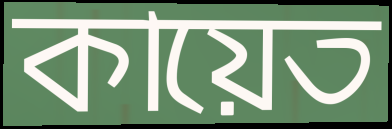
কায়েত